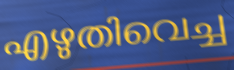
എഴുതിവെച്ച